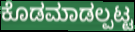
ಕೊಡಮಾಡಲ್ಪಟ್ಟ